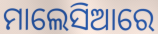
ମାଲେସିଆରେ